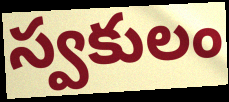
స్వకులం